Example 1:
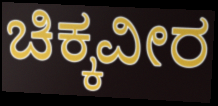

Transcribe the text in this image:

ಚಿಕ್ಕವೀರ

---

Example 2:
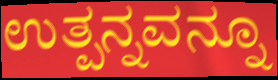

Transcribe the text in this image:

ಉತ್ಪನ್ನವನ್ನೂ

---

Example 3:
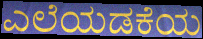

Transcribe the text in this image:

ಎಲೆಯಡಕೆಯ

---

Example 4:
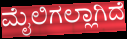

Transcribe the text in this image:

ಮೈಲಿಗಲ್ಲಾಗಿದೆ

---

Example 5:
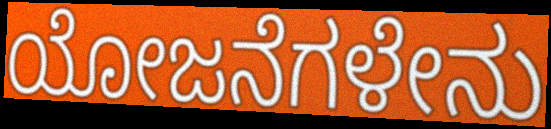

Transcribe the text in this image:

ಯೋಜನೆಗಳೇನು